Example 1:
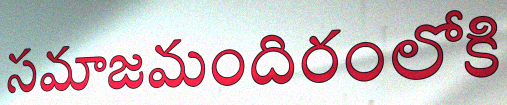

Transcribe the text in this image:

సమాజమందిరంలోకి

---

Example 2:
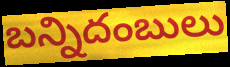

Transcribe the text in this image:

బన్నిదంబులు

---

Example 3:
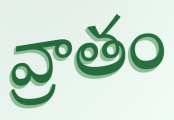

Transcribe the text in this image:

వ్రాతం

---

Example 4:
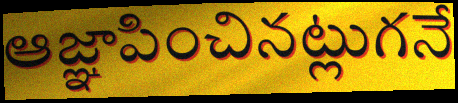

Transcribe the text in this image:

ఆజ్ఞాపించినట్లుగనే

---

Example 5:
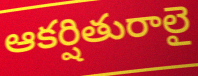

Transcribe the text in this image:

ఆకర్షితురాలై